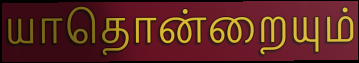
யாதொன்றையும்